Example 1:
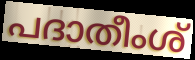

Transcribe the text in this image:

പദാതീംശ്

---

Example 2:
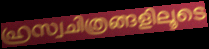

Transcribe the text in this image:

ഹ്രസ്വചിത്രങ്ങളിലൂടെ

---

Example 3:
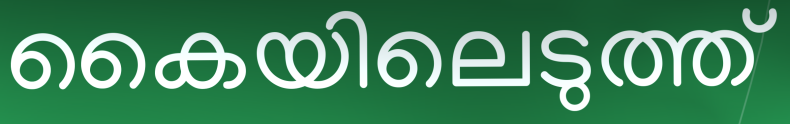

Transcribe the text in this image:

കൈയിലെടുത്ത്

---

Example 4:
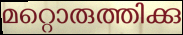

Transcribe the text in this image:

മറ്റൊരുത്തിക്കു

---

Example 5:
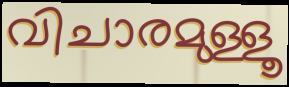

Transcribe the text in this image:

വിചാരമുള്ളൂ